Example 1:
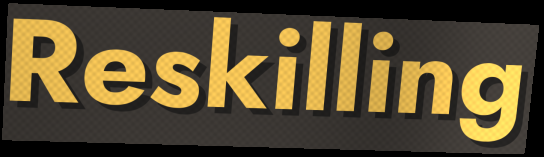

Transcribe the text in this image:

Reskilling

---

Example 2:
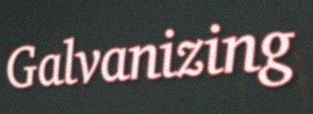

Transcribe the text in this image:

Galvanizing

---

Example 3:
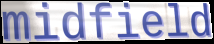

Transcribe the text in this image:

midfield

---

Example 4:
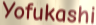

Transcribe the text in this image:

Yofukashi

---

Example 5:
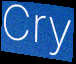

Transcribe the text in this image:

Cry